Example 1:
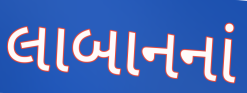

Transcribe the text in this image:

લાબાનનાં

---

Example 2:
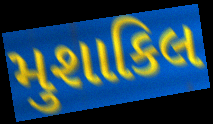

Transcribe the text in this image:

મુશાકિલ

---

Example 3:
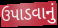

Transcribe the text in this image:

ઉપાડવાનું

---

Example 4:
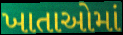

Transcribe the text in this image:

ખાતાઓમાં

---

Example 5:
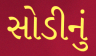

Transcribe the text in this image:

સોડીનું